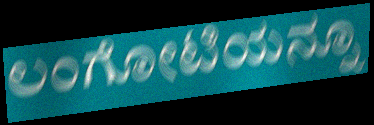
ಲಂಗೋಟಿಯನ್ನೂ